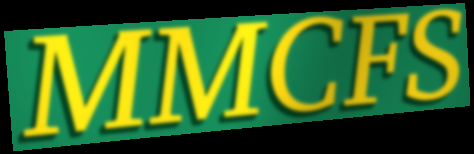
MMCFS